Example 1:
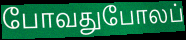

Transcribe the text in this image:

போவதுபோலப்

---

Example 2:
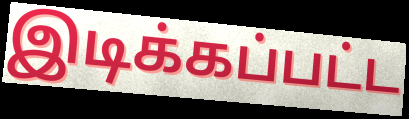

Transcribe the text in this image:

இடிக்கப்பட்ட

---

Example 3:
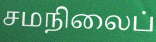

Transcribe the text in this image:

சமநிலைப்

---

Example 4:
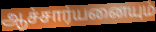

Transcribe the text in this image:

ஆச்சார்யனையும்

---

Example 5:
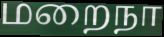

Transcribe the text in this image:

மறைநா